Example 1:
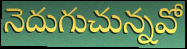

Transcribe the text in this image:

నెదుగుచున్నవో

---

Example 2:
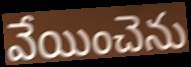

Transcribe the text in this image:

వేయించెను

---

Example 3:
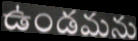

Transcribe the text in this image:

ఉండమను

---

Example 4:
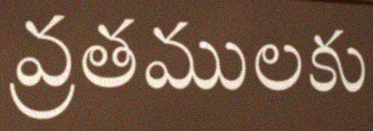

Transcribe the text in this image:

వ్రతములకు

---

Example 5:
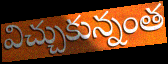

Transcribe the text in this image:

విచ్చుకున్నంత